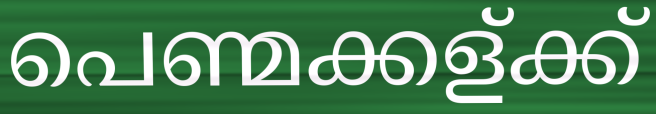
പെണ്മക്കള്ക്ക്